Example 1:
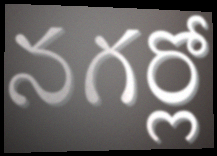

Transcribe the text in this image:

నగర్లో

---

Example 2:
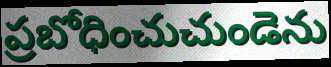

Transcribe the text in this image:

ప్రబోధించుచుండెను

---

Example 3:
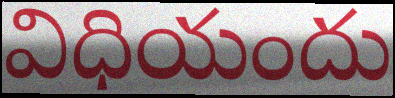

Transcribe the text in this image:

విధియందు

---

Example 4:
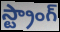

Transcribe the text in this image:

స్ట్రాంగ్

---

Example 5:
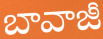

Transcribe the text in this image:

బావాజీ